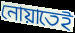
নোয়াতেই